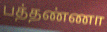
பத்தண்ணா